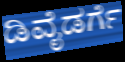
ಡಿವೈಡರ್ಗೆ